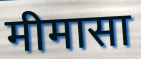
मीमासा